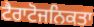
ਟੈਰਾਟੋਜਨਿਕਤਾ